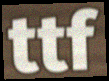
ttf